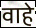
वाहे